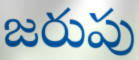
జరుపు